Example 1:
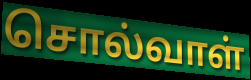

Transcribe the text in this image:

சொல்வாள்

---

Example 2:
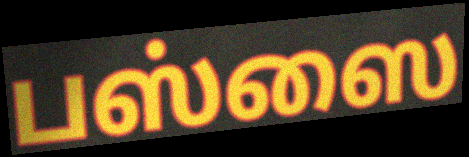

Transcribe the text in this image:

பஸ்ஸை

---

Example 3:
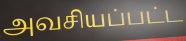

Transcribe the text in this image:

அவசியப்பட்ட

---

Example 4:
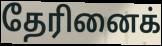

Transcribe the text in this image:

தேரினைக்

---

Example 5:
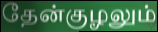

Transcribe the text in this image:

தேன்குழலும்